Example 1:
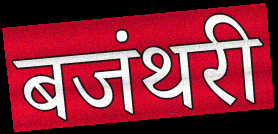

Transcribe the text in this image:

बजंथरी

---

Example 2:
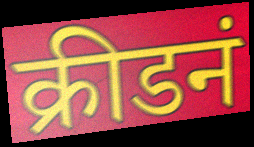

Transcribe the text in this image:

क्रीडनं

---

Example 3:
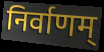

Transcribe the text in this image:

निर्वाणम्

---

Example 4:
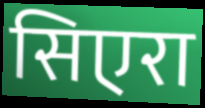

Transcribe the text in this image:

सिएरा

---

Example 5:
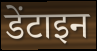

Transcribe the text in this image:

डेंटाइन